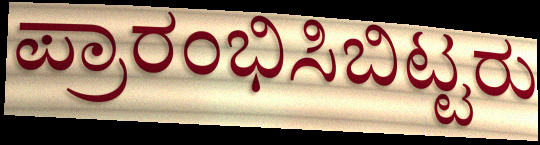
ಪ್ರಾರಂಭಿಸಿಬಿಟ್ಟರು